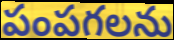
పంపగలను